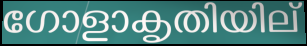
ഗോളാകൃതിയില്